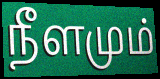
நீளமும்